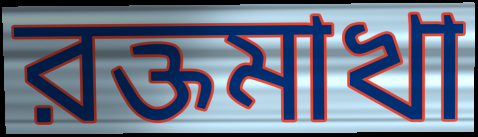
রক্তমাখা